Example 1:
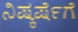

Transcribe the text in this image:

ನಿಷ್ಕರ್ಷೆಗೆ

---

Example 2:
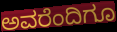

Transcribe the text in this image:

ಅವರೆಂದಿಗೂ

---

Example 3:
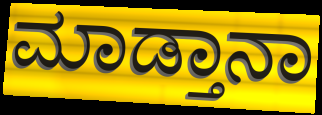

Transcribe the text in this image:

ಮಾಡ್ತಾನಾ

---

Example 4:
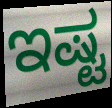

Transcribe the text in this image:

ಇಷ್ಟ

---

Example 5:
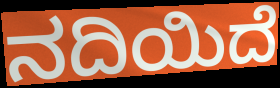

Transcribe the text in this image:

ನದಿಯಿದೆ